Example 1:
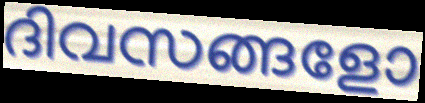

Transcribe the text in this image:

ദിവസങ്ങളോ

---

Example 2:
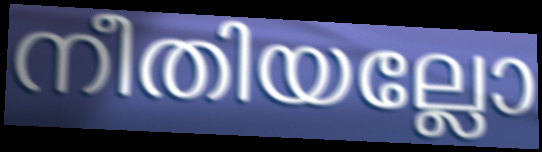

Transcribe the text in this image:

നീതിയല്ലോ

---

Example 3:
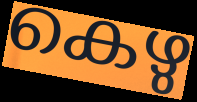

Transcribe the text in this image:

കെഴു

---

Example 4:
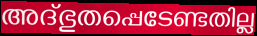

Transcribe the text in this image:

അദ്ഭുതപ്പെടേണ്ടതില്ല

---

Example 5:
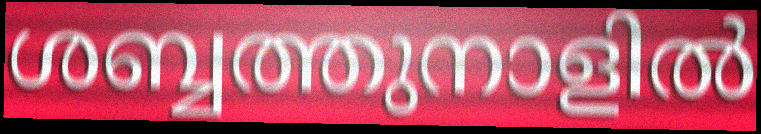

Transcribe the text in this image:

ശബ്ബത്തുനാളിൽ